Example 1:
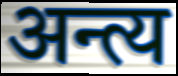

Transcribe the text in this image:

अन्त्य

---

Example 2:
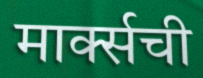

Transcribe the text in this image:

मार्क्सची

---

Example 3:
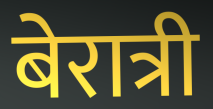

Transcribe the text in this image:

बेरात्री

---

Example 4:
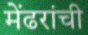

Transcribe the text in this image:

मेंढरांची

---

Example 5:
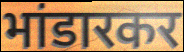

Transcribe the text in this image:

भांडारकर